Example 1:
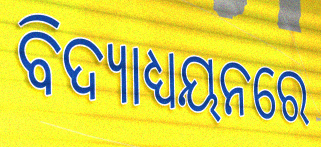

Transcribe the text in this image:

ବିଦ୍ୟାଧ୍ୟୟନରେ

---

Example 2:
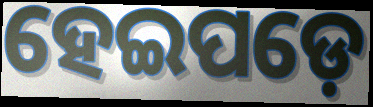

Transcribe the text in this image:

ହେଇପଡ଼େ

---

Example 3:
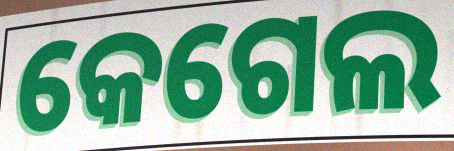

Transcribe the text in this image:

କେଗେଲ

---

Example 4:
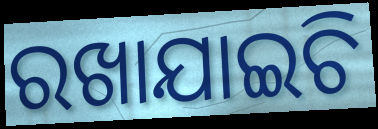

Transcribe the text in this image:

ରଖାଯାଇଚି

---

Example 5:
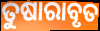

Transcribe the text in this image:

ତୁଷାରାବୃତ